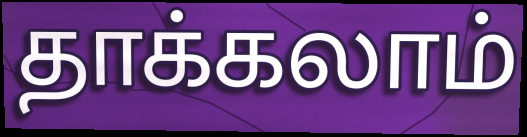
தாக்கலாம்